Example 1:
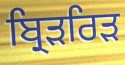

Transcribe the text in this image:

ਬ੍ਰਿੜਰਿੜ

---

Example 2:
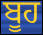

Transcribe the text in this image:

ਬੂਹ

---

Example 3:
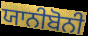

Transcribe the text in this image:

ਯਾਨੀਬੋਨੀ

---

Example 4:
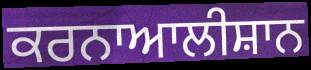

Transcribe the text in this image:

ਕਰਨਾਆਲੀਸ਼ਾਨ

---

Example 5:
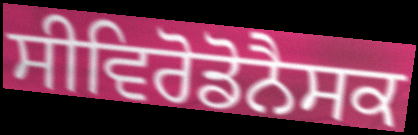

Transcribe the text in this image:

ਸੀਵਿਰੋਡੋਨੈਸਕ